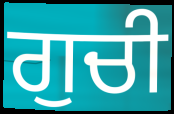
ਗੁਚੀ